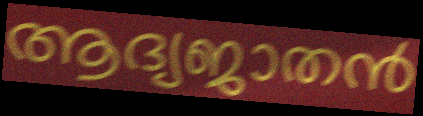
ആദ്യജാതൻ